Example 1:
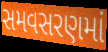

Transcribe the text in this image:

સમવસરણમાં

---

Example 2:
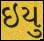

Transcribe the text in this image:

ઇયુ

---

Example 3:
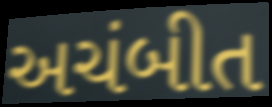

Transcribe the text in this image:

અચંબીત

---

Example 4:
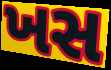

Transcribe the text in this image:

ખસ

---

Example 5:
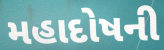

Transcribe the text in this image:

મહાદોષની